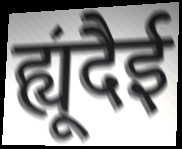
ह्यूंदैई